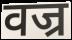
वज्र